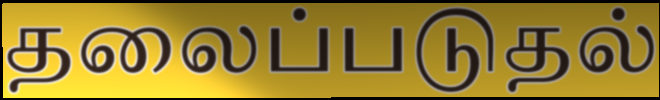
தலைப்படுதல்